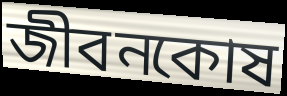
জীবনকোষ